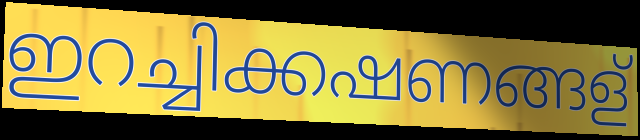
ഇറച്ചിക്കഷണങ്ങള്